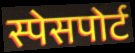
स्पेसपोर्ट